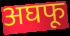
अघफू